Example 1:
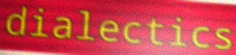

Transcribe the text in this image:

dialectics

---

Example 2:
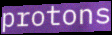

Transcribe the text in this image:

protons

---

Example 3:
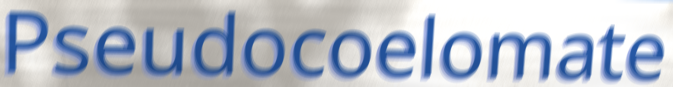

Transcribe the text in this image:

Pseudocoelomate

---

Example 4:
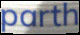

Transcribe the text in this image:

parth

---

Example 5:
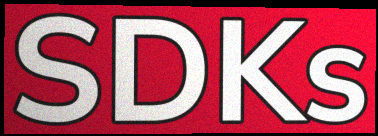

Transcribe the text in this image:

SDKs